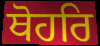
ਥੋਹਰਿ